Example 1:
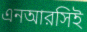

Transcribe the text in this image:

এনআরসিই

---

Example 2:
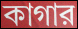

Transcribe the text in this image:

কাগার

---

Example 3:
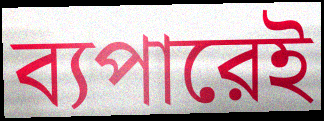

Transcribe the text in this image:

ব্যপারেই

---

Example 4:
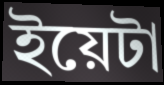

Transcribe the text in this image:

ইয়েটা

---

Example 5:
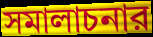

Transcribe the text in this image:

সমালাচনার